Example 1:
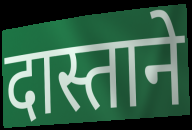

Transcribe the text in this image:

दास्ताने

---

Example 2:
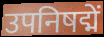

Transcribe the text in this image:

उपनिषद्में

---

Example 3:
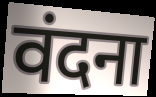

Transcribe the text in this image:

वंदना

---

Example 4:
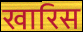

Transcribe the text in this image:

खारिस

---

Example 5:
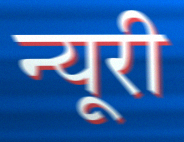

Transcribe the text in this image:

न्यूरी